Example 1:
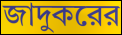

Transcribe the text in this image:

জাদুকরের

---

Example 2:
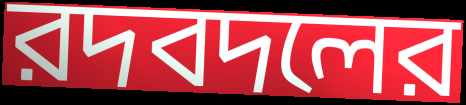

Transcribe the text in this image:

রদবদলের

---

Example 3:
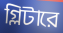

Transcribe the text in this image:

গ্লিটারে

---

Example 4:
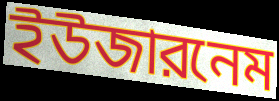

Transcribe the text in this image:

ইউজারনেম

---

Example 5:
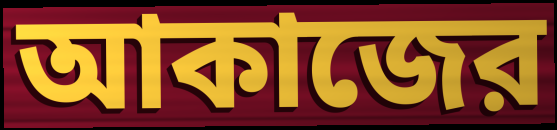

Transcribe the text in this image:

আকাজের